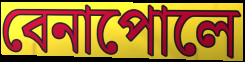
বেনাপোলে